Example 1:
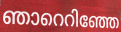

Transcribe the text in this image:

ഞാറെറിഞ്ഞേ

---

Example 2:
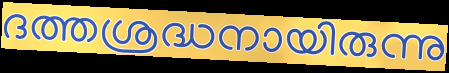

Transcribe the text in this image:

ദത്തശ്രദ്ധനായിരുന്നു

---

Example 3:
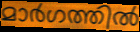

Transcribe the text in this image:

മാർഗത്തിൽ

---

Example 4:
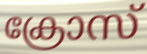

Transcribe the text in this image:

ക്രോസ്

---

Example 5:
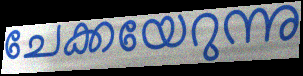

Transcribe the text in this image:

ചേക്കയേറുന്നു